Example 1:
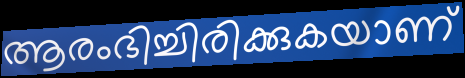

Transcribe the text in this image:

ആരംഭിച്ചിരിക്കുകയാണ്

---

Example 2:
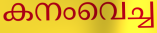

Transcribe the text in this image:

കനംവെച്ച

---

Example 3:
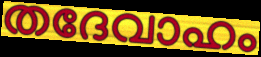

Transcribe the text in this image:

തദേവാഹം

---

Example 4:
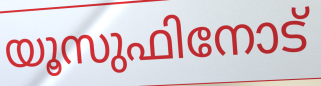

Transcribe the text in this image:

യൂസുഫിനോട്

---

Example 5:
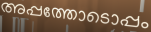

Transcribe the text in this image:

അപ്പത്തോടൊപ്പം